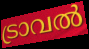
ട്രാവൽ